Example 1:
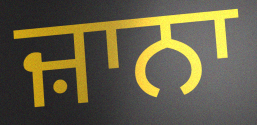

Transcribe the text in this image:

ਜ਼ਾਨਾ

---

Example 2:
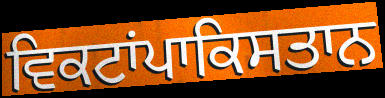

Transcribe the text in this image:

ਵਿਕਟਾਂਪਾਕਿਸਤਾਨ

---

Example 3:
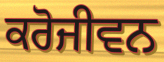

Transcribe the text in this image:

ਕਰੋਜੀਵਨ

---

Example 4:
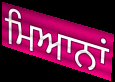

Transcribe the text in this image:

ਮਿਆਨਾਂ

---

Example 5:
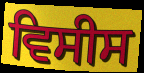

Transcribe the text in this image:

ਵਿਸੀਸ